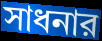
সাধনার